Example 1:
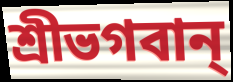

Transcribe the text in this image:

শ্রীভগবান্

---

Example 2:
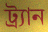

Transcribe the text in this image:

ট্র্যান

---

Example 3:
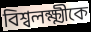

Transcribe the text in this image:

বিশ্বলক্ষ্মীকে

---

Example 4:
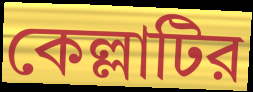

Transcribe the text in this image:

কেল্লাটির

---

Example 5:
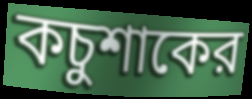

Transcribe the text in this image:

কচুশাকের